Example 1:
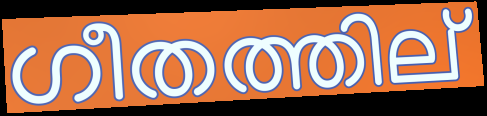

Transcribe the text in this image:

ഗീതത്തില്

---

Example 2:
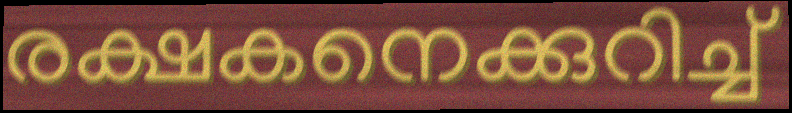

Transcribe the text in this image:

രക്ഷകനെക്കുറിച്ച്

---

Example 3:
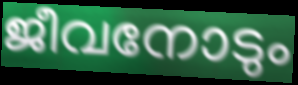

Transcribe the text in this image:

ജീവനോടും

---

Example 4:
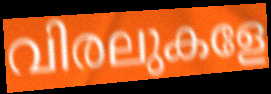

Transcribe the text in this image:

വിരലുകളേ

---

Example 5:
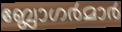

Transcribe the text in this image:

ബ്ലോഗർമാർ